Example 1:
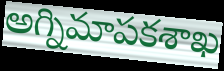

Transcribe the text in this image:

అగ్నిమాపకశాఖ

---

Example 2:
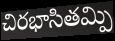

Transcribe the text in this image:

చిరభాసితమ్పి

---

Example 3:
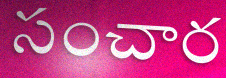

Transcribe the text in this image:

సంచార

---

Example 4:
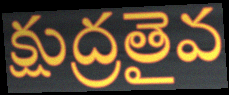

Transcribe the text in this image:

క్షుద్రతైవ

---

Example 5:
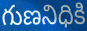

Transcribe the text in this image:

గుణనిధికి